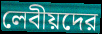
লেবীয়দের